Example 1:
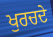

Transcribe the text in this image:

ਖੁਰਚਦੇ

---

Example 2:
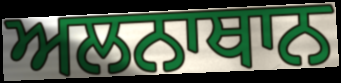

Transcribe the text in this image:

ਅਲਨਾਥਾਨ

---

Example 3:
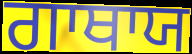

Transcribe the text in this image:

ਗਾਥਾਯ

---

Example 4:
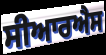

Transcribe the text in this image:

ਸੀਆਰਐਸ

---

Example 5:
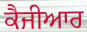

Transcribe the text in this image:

ਕੈਜੀਆਰ